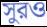
সুরও